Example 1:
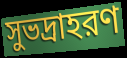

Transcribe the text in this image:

সুভদ্রাহরণ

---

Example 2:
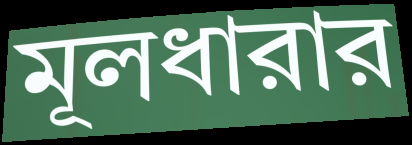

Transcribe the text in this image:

মূলধারার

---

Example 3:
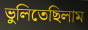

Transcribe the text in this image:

ভুলিতেছিলাম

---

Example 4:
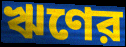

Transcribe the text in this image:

ঋণের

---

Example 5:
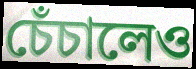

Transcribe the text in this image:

চেঁচালেও